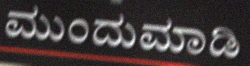
ಮುಂದುಮಾಡಿ